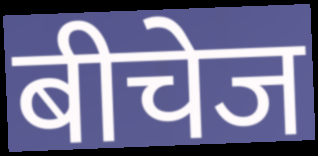
बीचेज